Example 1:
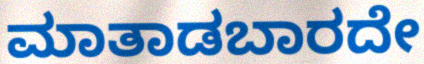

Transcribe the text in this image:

ಮಾತಾಡಬಾರದೇ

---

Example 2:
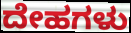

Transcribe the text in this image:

ದೇಹಗಳು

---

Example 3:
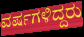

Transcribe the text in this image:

ವರ್ಷಗಳಿದ್ದರು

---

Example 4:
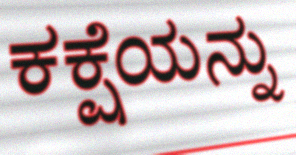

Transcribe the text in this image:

ಕಕ್ಷೆಯನ್ನು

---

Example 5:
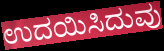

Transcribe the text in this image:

ಉದಯಿಸಿದುವು